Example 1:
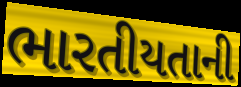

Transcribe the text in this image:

ભારતીયતાની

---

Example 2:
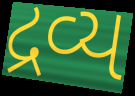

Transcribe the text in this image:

દ્રવ્ય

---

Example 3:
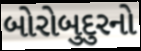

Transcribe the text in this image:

બોરોબુદુરનો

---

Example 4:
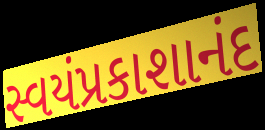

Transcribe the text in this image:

સ્વયંપ્રકાશાનંદ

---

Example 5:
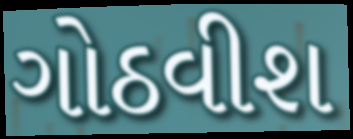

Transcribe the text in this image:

ગોઠવીશ